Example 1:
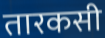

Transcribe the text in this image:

तारकसी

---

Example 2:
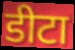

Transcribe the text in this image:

डीटा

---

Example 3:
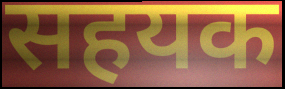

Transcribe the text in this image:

सहयक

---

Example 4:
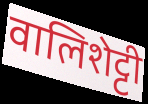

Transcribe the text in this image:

वालिशेट्टी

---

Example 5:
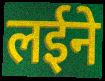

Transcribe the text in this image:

लईने